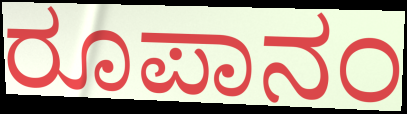
ರೂಪಾನಂ